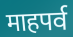
माहपर्व